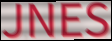
JNES